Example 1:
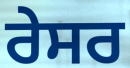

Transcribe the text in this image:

ਰੇਸਰ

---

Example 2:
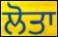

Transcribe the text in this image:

ਲੋਤਾ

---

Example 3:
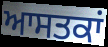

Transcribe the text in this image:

ਆਸਤਕਾਂ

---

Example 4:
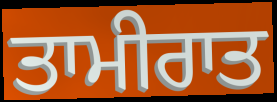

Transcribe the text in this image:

ਤਾਮੀਰਾਤ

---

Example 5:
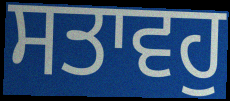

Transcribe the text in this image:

ਸਤਾਵਹੁ